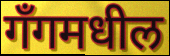
गँगमधील